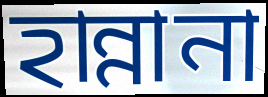
হান্নানা